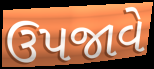
ઉપજાવે